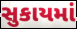
સુકાયમાં